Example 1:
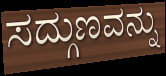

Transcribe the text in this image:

ಸದ್ಗುಣವನ್ನು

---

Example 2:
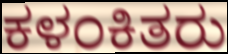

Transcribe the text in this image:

ಕಳಂಕಿತರು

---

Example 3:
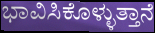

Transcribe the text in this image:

ಭಾವಿಸಿಕೊಳ್ಳುತ್ತಾನೆ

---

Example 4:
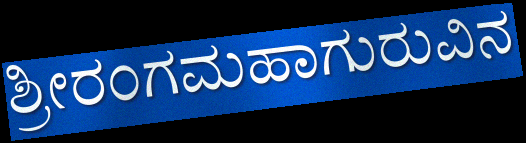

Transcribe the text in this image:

ಶ್ರೀರಂಗಮಹಾಗುರುವಿನ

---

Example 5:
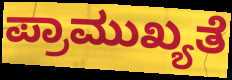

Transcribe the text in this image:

ಪ್ರಾಮುಖ್ಯತೆ